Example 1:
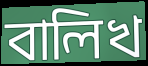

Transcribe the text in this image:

বালিখ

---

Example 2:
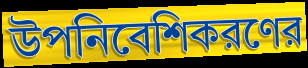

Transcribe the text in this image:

উপনিবেশিকরণের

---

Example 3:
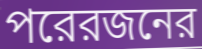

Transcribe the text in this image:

পরেরজনের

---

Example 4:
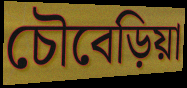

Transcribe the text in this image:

চৌবেড়িয়া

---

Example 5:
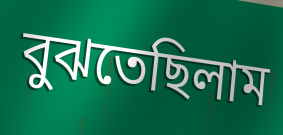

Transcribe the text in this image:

বুঝতেছিলাম